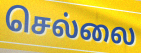
செல்லை